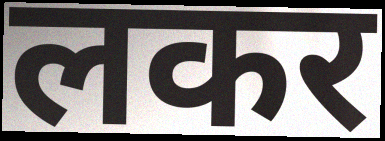
लकर